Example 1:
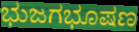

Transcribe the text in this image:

ಭುಜಗಭೂಷಣ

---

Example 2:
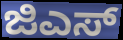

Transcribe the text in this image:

ಜಿಎಸ್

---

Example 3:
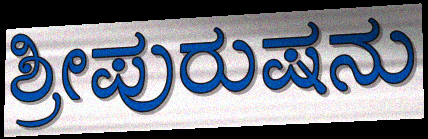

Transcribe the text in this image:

ಶ್ರೀಪುರುಷನು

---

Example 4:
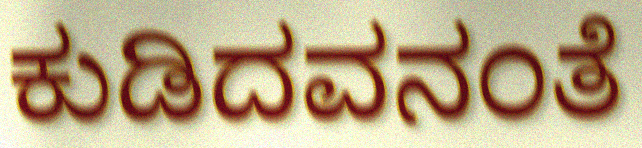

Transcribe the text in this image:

ಕುಡಿದವನಂತೆ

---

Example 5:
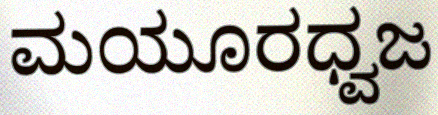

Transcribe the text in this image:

ಮಯೂರಧ್ವಜ